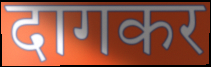
दागकर